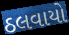
ઠલવાયો